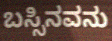
ಬಸ್ಸಿನವನು